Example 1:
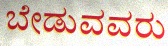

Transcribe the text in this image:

ಬೇಡುವವರು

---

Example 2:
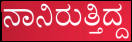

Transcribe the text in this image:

ನಾನಿರುತ್ತಿದ್ದ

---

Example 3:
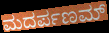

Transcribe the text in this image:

ಮದರ್ಪಣಮ್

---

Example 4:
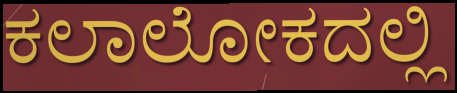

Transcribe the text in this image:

ಕಲಾಲೋಕದಲ್ಲಿ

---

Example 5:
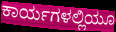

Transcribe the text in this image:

ಕಾರ್ಯಗಳಲ್ಲಿಯೂ